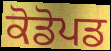
ਕੋਡੋਪਡ